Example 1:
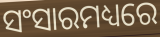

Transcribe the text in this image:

ସଂସାରମଧ୍ୟରେ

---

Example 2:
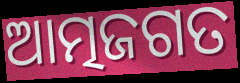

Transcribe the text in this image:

ଆତ୍ମଜଗତ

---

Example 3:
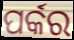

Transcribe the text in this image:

ପର୍କର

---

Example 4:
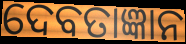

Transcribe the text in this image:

ଦେବତାଜ୍ଞାନ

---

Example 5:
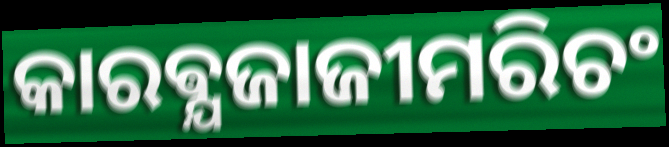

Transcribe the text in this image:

କାରଵ୍ଯଜାଜୀମରିଚଂ